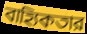
বাহ্যিকতার